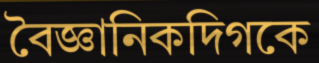
বৈজ্ঞানিকদিগকে